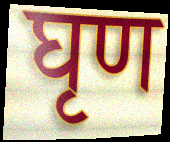
घृण